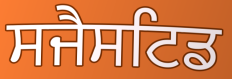
ਸਜੈਸਟਿਡ